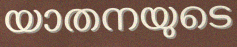
യാതനയുടെ